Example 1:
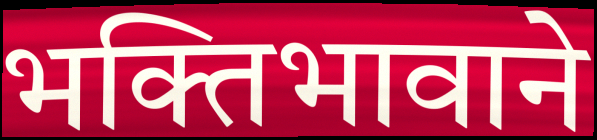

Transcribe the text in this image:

भक्तिभावाने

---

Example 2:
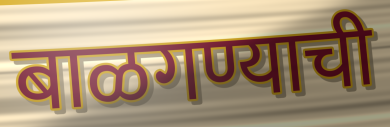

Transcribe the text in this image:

बाळगण्याची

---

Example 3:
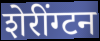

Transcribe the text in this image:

शेरींग्टन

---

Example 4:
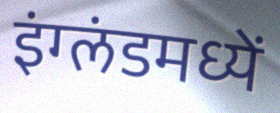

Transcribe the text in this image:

इंग्लंडमध्यें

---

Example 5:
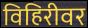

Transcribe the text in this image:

विहिरीवर